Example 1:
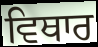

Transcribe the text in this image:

ਵਿਥਾਰ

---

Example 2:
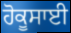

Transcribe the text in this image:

ਹੋਕੂਸਾਈ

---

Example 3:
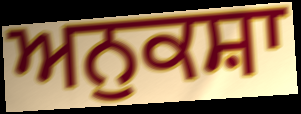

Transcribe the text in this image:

ਅਨੁਕਸ਼ਾ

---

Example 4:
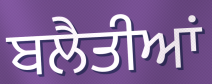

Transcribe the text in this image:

ਬਲੈਤੀਆਂ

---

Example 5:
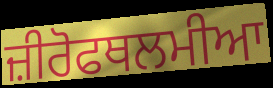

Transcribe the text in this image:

ਜ਼ੀਰੋਫਥਲਮੀਆ